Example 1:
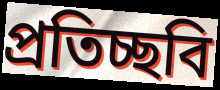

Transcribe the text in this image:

প্রতিচ্ছবি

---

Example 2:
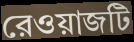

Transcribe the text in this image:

রেওয়াজটি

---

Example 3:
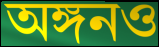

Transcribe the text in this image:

অঙ্গনও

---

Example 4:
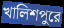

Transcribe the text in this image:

খালিশপুরে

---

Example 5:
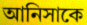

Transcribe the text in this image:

আনিসাকে